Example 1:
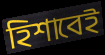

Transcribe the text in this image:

হিশাবেই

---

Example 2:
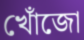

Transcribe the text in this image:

খোঁজো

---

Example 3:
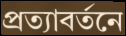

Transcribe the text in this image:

প্রত্যাবর্তনে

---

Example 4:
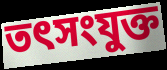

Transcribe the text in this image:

তৎসংযুক্ত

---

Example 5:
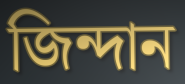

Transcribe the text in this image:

জিন্দান